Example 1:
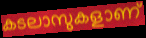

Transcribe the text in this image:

കടലാസുകളാണ്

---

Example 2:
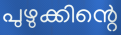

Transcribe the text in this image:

പുഴുക്കിന്റെ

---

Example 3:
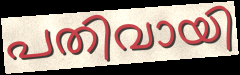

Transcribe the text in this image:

പതിവായി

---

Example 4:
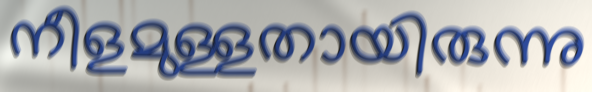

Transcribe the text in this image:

നീളമുള്ളതായിരുന്നു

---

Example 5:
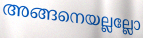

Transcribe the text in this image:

അങ്ങനെയല്ലല്ലോ